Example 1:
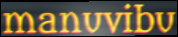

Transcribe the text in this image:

manuvibu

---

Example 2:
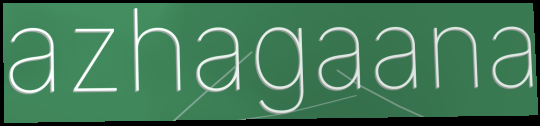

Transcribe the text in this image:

azhagaana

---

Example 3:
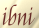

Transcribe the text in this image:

ibni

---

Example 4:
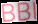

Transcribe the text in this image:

BBI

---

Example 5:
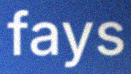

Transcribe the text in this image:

fays